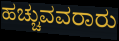
ಹಚ್ಚುವವರಾರು